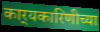
कार्यकारिणीच्या